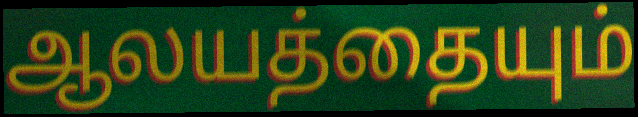
ஆலயத்தையும்